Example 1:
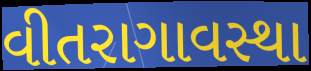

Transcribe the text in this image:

વીતરાગાવસ્થા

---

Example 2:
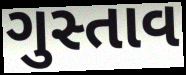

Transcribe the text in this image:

ગુસ્તાવ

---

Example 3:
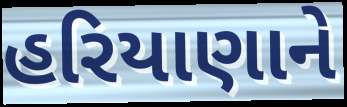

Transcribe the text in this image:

હરિયાણાને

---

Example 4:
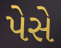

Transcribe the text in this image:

પેસે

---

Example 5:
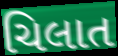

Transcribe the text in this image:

ચિલાત